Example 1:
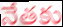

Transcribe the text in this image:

నేతకు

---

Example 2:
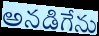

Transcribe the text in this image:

అనడిగేను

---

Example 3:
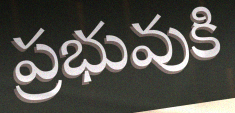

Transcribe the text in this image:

ప్రభువుకి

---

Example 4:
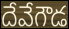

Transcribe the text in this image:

దేవేగౌడ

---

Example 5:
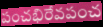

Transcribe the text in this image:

పంచభిరేవపంచ